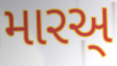
મારઅ્